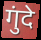
गुंदे